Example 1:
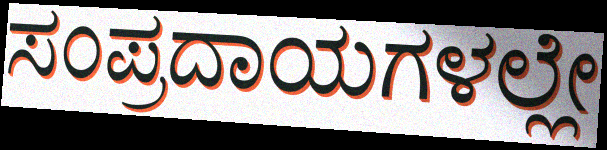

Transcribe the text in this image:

ಸಂಪ್ರದಾಯಗಳಲ್ಲೇ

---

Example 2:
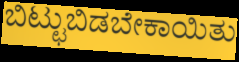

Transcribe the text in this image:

ಬಿಟ್ಟುಬಿಡಬೇಕಾಯಿತು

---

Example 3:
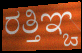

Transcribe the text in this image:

ರತ್ತಿಞ್ಚ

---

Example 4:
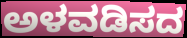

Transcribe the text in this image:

ಅಳವಡಿಸದ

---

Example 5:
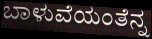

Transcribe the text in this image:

ಬಾಳುವೆಯಂತೆನ್ನ